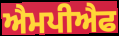
ਐਮਪੀਐਫ